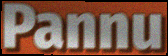
Pannu